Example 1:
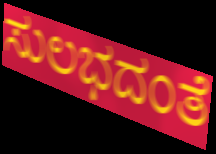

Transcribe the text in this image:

ಸುಲಭದಂತೆ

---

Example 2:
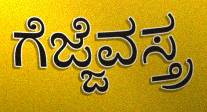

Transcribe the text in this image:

ಗೆಜ್ಜೆವಸ್ತ್ರ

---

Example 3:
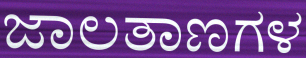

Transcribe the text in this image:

ಜಾಲತಾಣಗಳ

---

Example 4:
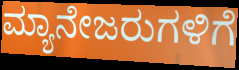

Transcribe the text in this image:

ಮ್ಯಾನೇಜರುಗಳಿಗೆ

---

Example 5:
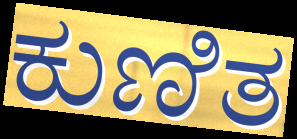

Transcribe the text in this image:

ಕುಣಿತ